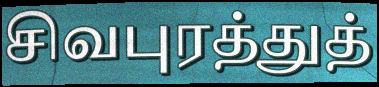
சிவபுரத்துத்